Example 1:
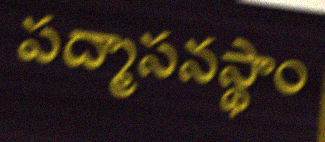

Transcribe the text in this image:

పద్మాసనస్థాం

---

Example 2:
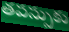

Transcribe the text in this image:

తపస్సుకు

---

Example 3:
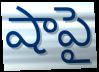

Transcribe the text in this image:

షాపై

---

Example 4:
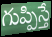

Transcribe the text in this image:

గుప్పిస్తే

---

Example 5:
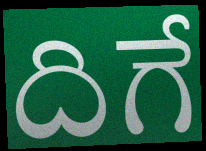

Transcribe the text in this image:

దిగే